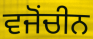
ਵਜੋਂਚੀਨ